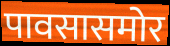
पावसासमोर